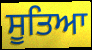
ਸੂਤਿਆ